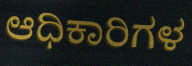
ಆಧಿಕಾರಿಗಳ